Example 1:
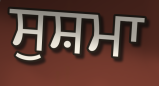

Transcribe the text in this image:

ਸੁਸ਼ਮਾ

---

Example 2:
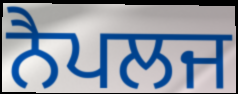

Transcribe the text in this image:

ਨੈਪਲਜ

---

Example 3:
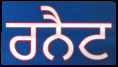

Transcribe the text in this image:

ਰਨੈਟ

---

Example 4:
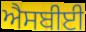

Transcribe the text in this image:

ਐਸਬੀਈ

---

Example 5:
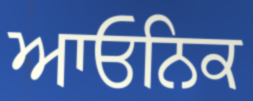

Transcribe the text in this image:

ਆਓਨਿਕ